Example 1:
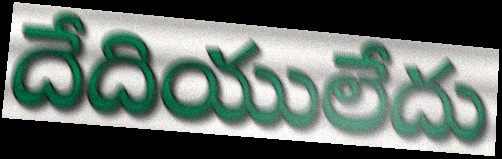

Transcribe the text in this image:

దేదియులేదు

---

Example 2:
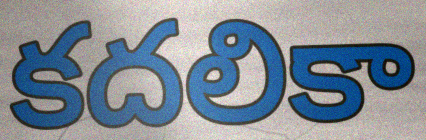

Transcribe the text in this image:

కదలికా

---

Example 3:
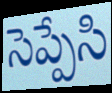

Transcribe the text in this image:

సెప్పేసి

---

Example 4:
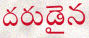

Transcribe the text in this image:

దరుడైన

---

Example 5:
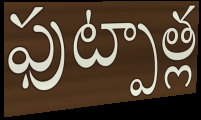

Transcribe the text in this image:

ఫుట్పాత్ల